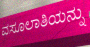
ವಸೂಲಾತಿಯನ್ನು